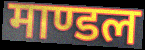
माण्डल